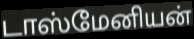
டாஸ்மேனியன்